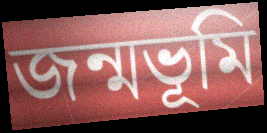
জন্মভূমি